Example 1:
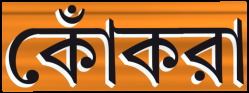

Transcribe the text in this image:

কোঁকরা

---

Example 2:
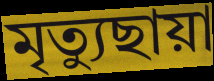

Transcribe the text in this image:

মৃত্যুছায়া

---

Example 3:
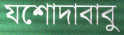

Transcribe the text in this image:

যশোদাবাবু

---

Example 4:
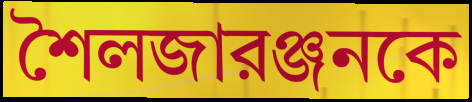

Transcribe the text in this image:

শৈলজারঞ্জনকে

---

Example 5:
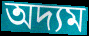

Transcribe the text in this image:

অদ্যম